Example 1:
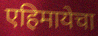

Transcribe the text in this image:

एहिमायेचा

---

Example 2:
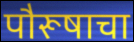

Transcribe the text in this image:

पौरूषाचा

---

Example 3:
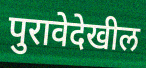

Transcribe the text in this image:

पुरावेदेखील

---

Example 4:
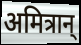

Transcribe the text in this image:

अमित्रान्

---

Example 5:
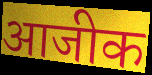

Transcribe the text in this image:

आजीक